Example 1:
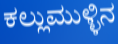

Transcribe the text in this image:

ಕಲ್ಲುಮುಳ್ಳಿನ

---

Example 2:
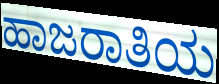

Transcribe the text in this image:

ಹಾಜರಾತಿಯ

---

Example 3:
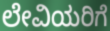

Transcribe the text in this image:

ಲೇವಿಯರಿಗೆ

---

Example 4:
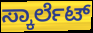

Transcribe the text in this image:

ಸ್ಕಾರ್ಲೆಟ್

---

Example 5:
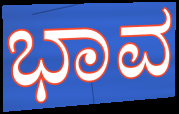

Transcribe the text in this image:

ಭಾವ